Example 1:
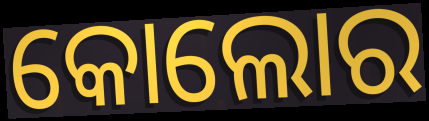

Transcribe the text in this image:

କୋଲୋର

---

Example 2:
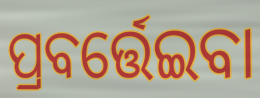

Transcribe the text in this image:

ପ୍ରବର୍ତ୍ତେଇବା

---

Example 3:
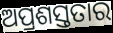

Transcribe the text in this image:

ଅପ୍ରଶସ୍ତତାର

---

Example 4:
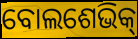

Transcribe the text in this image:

ବୋଲଶେଭିକ୍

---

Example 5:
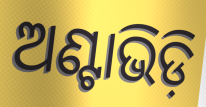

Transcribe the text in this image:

ଅଣ୍ଟାଭିଡ଼ି